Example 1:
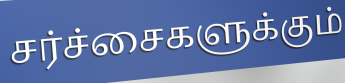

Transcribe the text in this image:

சர்ச்சைகளுக்கும்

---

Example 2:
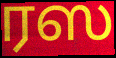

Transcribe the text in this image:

ரஸ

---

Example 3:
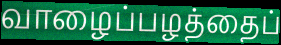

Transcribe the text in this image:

வாழைப்பழத்தைப்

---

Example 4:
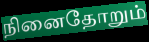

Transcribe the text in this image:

நினைதோறும்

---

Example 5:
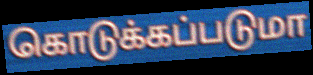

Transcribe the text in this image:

கொடுக்கப்படுமா